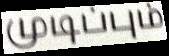
முடிப்பும்